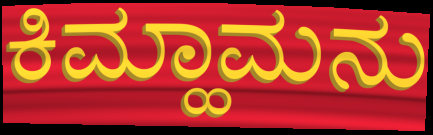
ಕಿಮ್ಹಾಮನು